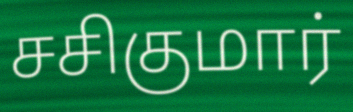
சசிகுமார்